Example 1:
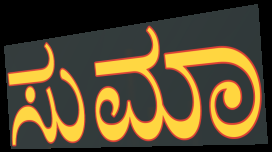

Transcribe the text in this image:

ಸುಮಾ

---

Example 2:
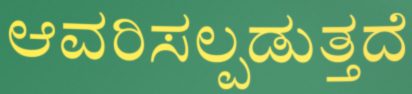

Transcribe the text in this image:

ಆವರಿಸಲ್ಪಡುತ್ತದೆ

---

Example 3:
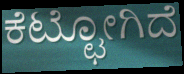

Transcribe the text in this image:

ಕೆಟ್ಟೋಗಿದೆ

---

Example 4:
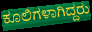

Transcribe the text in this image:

ಕೂಲಿಗಳಾಗಿದ್ದರು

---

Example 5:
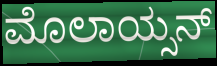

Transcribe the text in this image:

ಮೊಲಾಯ್ಸನ್